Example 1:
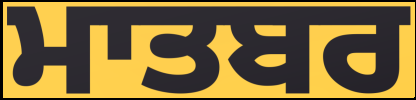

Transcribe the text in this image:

ਮਾਤਬਰ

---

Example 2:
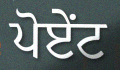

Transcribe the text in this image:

ਪੋਏਂਟ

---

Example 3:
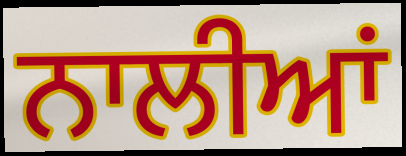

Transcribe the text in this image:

ਨਾਲੀਆਂ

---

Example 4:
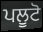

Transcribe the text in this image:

ਪਲੂਟੋ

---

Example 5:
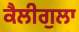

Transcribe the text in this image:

ਕੈਲੀਗੁਲਾ